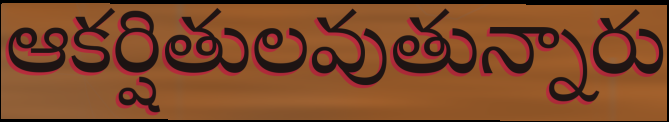
ఆకర్షితులవుతున్నారు